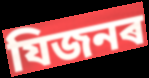
যিজনৰ